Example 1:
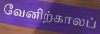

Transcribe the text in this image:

வேனிற்காலப்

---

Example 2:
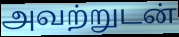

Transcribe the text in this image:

அவற்றுடன்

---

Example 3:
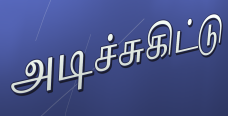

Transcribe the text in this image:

அடிச்சுகிட்டு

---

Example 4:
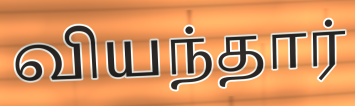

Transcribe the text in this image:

வியந்தார்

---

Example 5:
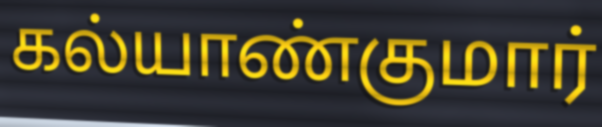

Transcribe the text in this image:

கல்யாண்குமார்